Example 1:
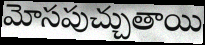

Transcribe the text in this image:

మోసపుచ్చుతాయి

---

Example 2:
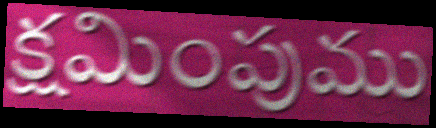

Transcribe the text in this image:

క్షమింపుము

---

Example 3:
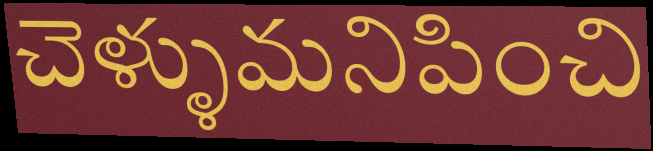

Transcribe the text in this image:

చెళ్ళుమనిపించి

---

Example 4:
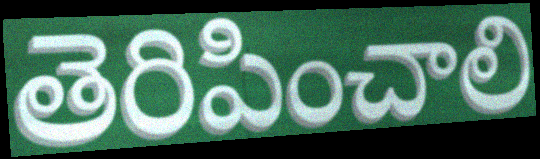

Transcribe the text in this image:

తెరిపించాలి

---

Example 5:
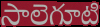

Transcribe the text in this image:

సాలెగూటి